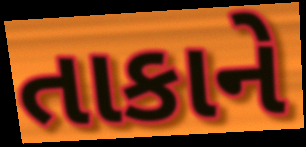
તાકાને